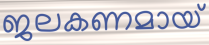
ജലകണമായ്